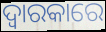
ଦ୍ବାରକାରେ